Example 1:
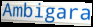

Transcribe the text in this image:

Ambigara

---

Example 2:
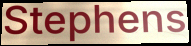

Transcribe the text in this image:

Stephens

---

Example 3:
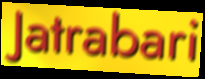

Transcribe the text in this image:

Jatrabari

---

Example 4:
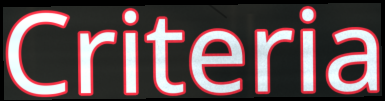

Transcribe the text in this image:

Criteria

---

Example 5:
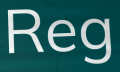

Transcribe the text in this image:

Reg